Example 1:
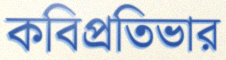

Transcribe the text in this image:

কবিপ্রতিভার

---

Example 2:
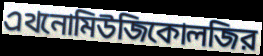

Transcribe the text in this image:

এথনোমিউজিকোলজির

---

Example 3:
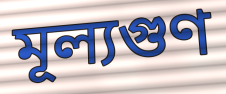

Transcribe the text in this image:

মূল্যগুণ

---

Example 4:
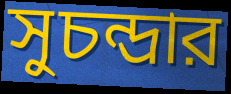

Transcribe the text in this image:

সুচন্দ্রার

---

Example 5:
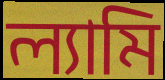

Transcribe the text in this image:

ল্যামি